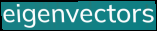
eigenvectors